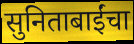
सुनिताबाईंचा